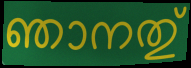
ഞാനതു്